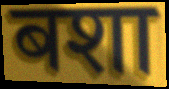
बशा